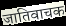
जातिवाचक